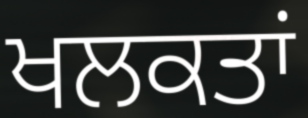
ਖਲਕਤਾਂ